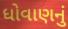
ધોવાણનું